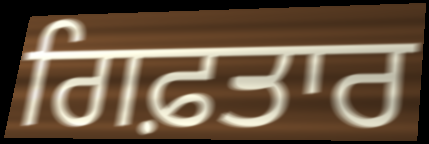
ਗਿਫ਼ਤਾਰ